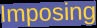
Imposing